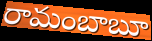
రామంబాబూ